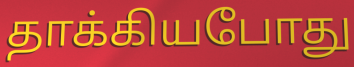
தாக்கியபோது